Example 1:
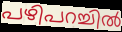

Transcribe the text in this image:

പഴിപറച്ചിൽ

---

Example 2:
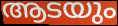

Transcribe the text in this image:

ആടയും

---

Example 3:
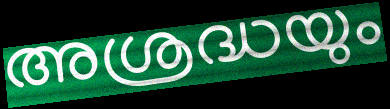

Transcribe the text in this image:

അശ്രദ്ധയും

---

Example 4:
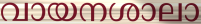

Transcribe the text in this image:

വായനശാലാ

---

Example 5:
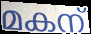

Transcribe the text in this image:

മകന്